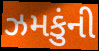
ઝમકુંની